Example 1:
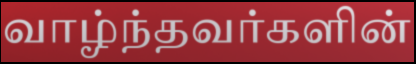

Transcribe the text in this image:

வாழ்ந்தவர்களின்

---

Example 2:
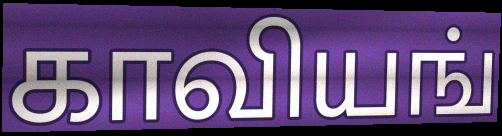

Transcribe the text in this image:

காவியங்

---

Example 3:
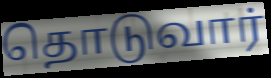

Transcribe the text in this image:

தொடுவார்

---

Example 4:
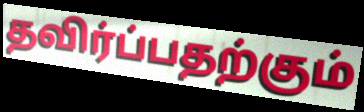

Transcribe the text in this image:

தவிர்ப்பதற்கும்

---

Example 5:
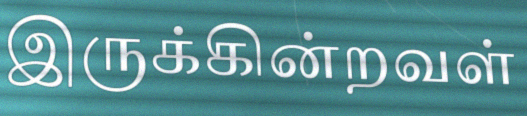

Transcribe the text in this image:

இருக்கின்றவள்